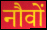
नौवों